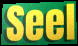
Seel